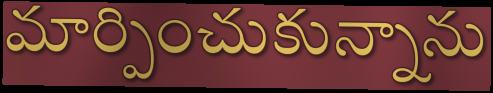
మార్పించుకున్నాను